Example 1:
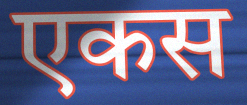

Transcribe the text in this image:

एकस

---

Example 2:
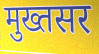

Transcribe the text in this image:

मुख्तसर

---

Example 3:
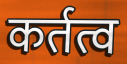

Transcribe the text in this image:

कर्तत्व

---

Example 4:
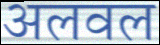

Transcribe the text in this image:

अलवल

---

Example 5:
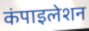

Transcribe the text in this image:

कंपाइलेशन